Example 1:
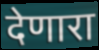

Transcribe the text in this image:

देणारा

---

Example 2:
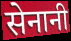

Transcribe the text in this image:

सेनानी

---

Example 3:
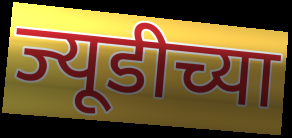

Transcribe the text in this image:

ज्यूडीच्या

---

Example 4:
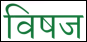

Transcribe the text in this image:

विषज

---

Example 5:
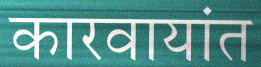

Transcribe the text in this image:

कारवायांत